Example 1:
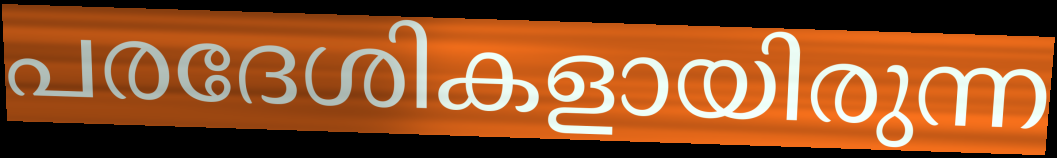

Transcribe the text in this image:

പരദേശികളായിരുന്ന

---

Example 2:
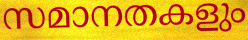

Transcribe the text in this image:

സമാനതകളും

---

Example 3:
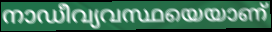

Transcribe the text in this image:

നാഡീവ്യവസ്ഥയെയാണ്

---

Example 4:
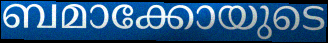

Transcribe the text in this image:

ബമാക്കോയുടെ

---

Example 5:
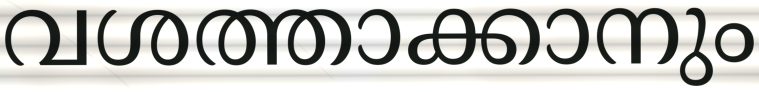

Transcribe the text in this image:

വശത്താക്കാനും